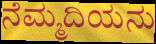
ನೆಮ್ಮದಿಯನು